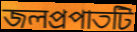
জলপ্রপাতটি